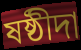
ষষ্ঠীদা